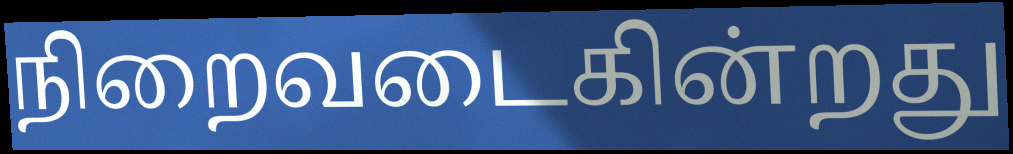
நிறைவடைகின்றது